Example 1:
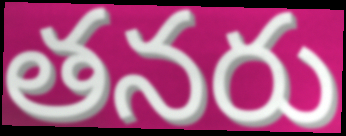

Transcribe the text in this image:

తనరు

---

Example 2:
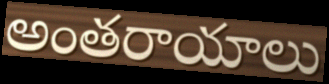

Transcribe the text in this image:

అంతరాయాలు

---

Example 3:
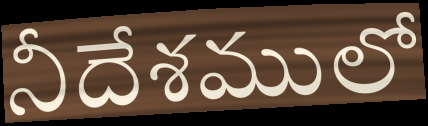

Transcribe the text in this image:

నీదేశములో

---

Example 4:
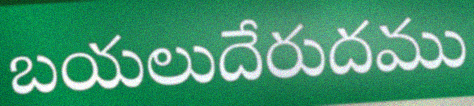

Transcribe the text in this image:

బయలుదేరుదము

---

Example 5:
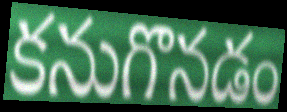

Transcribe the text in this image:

కనుగొనడం